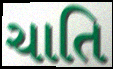
ચાતિ